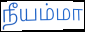
நீயம்மா